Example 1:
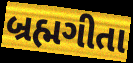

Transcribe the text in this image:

બ્રહ્મગીતા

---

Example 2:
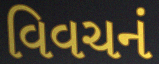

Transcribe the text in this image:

વિવચનં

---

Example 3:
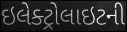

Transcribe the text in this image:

ઇલેક્ટ્રોલાઇટની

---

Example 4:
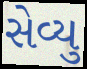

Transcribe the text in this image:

સેવ્યુ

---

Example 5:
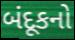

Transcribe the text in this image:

બંદૂકનો